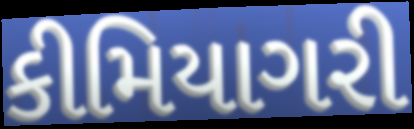
કીમિયાગરી